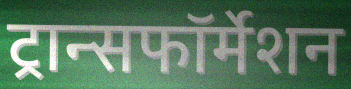
ट्रान्सफॉर्मेशन